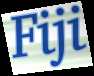
Fiji